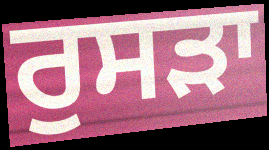
ਰੁਸੜਾ